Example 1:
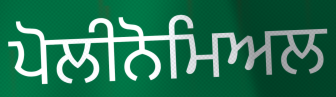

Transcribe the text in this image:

ਪੋਲੀਨੋਮਿਅਲ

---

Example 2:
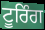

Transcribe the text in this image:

ਟੂਰਿੰਗ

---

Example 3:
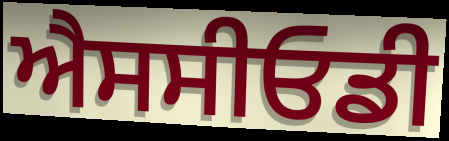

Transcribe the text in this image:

ਐਸਸੀਓਡੀ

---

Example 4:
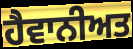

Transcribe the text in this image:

ਹੈਵਾਨੀਅਤ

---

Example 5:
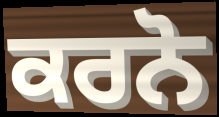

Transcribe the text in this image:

ਕਰਨੋ